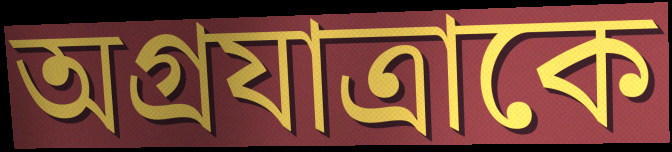
অগ্রযাত্রাকে